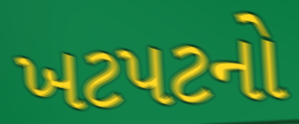
ખટપટનો